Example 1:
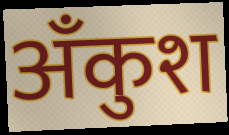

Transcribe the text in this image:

अँकुश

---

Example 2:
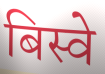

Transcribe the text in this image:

बिस्वे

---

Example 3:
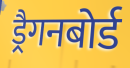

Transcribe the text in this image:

ड्रैगनबोर्ड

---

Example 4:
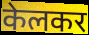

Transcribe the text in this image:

केलकर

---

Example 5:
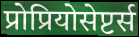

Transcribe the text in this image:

प्रोप्रियोसेप्टर्स